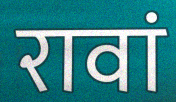
रावां